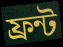
ফ্ৰন্ট